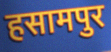
हसामपुर